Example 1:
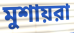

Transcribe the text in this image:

মুশায়রা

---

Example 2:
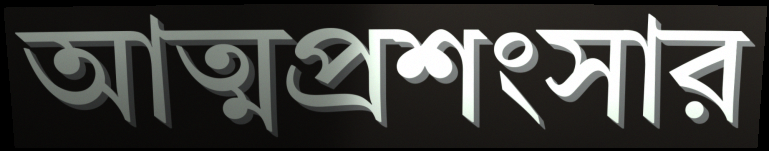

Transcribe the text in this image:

আত্মপ্রশংসার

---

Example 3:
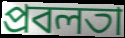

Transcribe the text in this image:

প্রবলতা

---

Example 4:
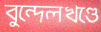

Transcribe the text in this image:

বুন্দেলখণ্ডে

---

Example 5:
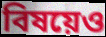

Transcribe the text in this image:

বিষয়েও